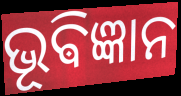
ଭୂଵିଜ୍ଞାନ